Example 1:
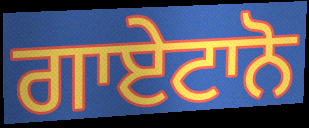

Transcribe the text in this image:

ਗਾਏਟਾਨੋ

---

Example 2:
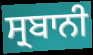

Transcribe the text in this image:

ਸ੍ਰਬਾਨੀ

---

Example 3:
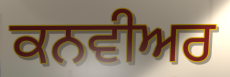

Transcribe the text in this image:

ਕਨਵੀਅਰ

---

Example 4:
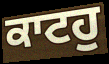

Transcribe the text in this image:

ਕਾਟਹੁ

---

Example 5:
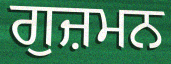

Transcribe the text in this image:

ਗੁਜ਼ਮਨ